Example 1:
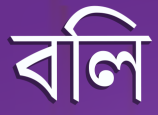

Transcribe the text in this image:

বলি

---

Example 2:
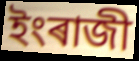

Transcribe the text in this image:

ইংৰাজী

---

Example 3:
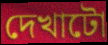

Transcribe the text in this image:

দেখাটো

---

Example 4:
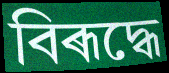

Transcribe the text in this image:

বিৰূদ্ধে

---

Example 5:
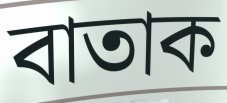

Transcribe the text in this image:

বাতাক